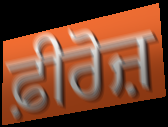
ਫ਼ੀਰੋਜ਼